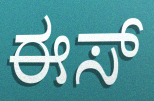
ಈಸ್